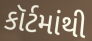
કૉર્ટમાંથી